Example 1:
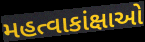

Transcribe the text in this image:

મહત્વાકાંક્ષાઓ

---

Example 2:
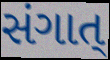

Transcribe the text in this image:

સંગાત્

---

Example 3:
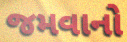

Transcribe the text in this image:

જમવાનો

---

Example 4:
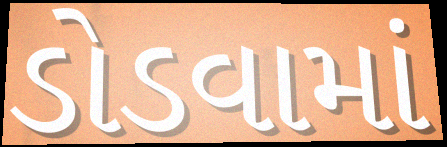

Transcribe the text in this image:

ડોડવામાં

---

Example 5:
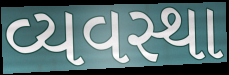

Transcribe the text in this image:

વ્યવસ્થા